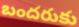
బందరుకు